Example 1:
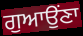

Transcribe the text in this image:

ਗੁਆਉਂਣਾ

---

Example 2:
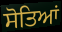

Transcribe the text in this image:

ਸੋਤਿਆਂ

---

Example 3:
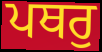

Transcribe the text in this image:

ਪਥਰੁ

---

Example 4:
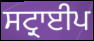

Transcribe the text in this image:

ਸਟ੍ਰਾਈਪ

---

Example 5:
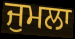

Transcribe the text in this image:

ਜੁਮਲਾ